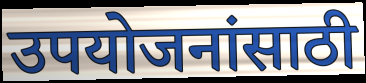
उपयोजनांसाठी